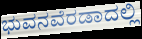
ಭುವನವೆರಡಾದಲ್ಲಿ